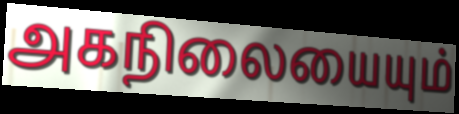
அகநிலையையும்